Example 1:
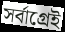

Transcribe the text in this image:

সর্বাগ্রেই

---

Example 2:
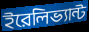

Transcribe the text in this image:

ইরেলিভ্যান্ট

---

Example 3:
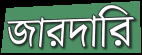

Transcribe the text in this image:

জারদারি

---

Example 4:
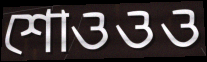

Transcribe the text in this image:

শোওওও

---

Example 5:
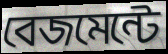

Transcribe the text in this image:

বেজমেন্টে